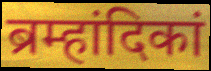
ब्रम्हांदिकां